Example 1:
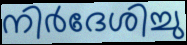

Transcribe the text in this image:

നിർദേശിച്ചു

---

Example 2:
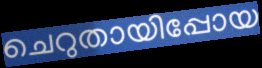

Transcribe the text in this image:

ചെറുതായിപ്പോയ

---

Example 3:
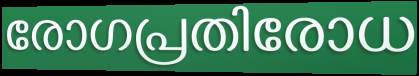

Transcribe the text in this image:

രോഗപ്രതിരോധ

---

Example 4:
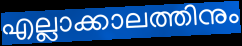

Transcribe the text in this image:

എല്ലാക്കാലത്തിനും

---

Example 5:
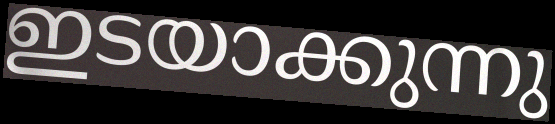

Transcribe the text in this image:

ഇടയാക്കുന്നു